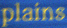
plains